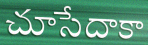
చూసేదాకా